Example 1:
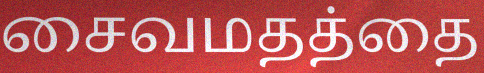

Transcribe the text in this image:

சைவமதத்தை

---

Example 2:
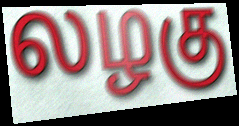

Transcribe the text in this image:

லழகு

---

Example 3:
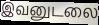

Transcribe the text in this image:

இவனுடலை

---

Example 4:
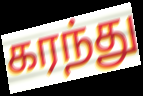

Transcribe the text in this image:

கரந்து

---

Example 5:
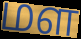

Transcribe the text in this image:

மள